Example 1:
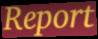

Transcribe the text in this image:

Report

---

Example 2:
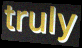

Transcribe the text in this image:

truly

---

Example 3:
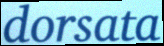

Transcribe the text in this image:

dorsata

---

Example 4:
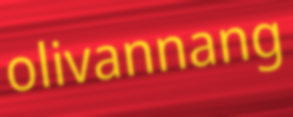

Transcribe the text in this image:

olivannang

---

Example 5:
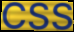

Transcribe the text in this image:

CSS